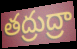
తద్రుద్రా